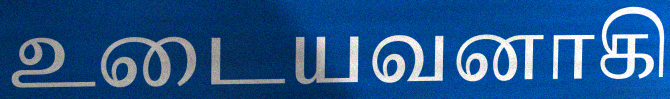
உடையவனாகி